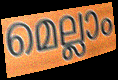
മെല്ലാം